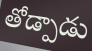
తోడ్పాడు